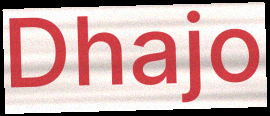
Dhajo